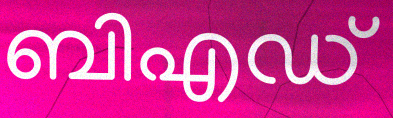
ബിഎഡ്